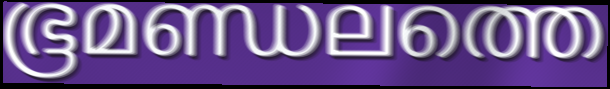
ഭൂമണ്ഡലത്തെ